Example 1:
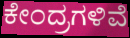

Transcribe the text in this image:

ಕೇಂದ್ರಗಳಿವೆ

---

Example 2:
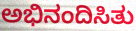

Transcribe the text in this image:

ಅಭಿನಂದಿಸಿತು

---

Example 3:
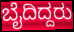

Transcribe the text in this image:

ಬೈದಿದ್ದರು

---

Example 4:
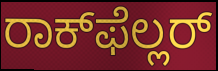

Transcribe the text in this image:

ರಾಕ್‌ಫೆಲ್ಲರ್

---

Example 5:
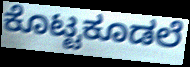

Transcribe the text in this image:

ಕೊಟ್ಟಕೂಡಲೆ